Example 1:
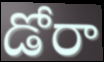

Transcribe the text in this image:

డోరా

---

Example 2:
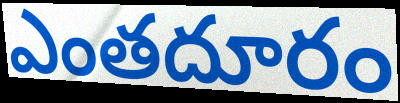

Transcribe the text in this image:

ఎంతదూరం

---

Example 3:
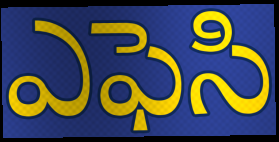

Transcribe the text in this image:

ఎఫెసి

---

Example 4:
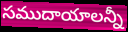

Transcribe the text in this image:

సముదాయాలన్నీ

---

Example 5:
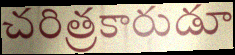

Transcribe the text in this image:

చరిత్రకారుడూ